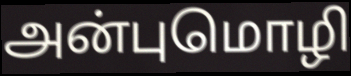
அன்புமொழி